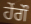
ਹੇਂਗੌ